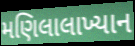
મણિલાલાખ્યાન